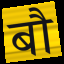
बौ